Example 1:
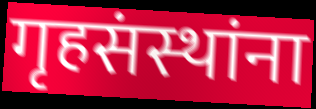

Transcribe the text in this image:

गृहसंस्थांना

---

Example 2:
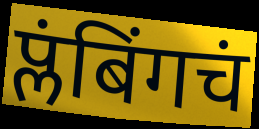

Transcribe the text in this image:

प्लंबिंगचं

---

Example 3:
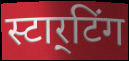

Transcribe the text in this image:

स्टार्टिंग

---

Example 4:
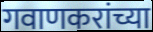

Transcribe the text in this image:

गवाणकरांच्या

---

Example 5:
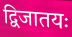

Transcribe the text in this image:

द्विजातयः